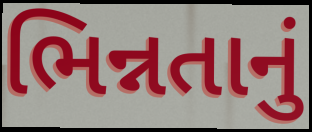
ભિન્નતાનું